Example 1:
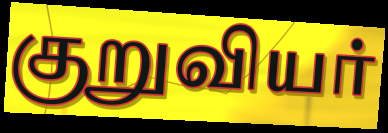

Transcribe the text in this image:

குறுவியர்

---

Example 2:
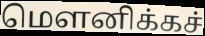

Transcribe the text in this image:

மௌனிக்கச்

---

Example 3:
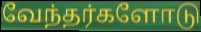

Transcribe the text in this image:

வேந்தர்களோடு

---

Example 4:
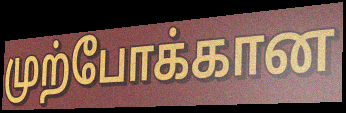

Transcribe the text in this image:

முற்போக்கான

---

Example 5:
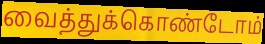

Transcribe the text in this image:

வைத்துக்கொண்டோம்